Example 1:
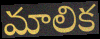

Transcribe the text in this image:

మాలిక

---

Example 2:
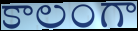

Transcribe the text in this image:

కాలంగా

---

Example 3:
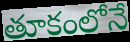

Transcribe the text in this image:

తూకంలోనే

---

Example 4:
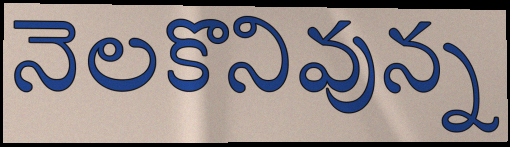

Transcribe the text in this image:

నెలకొనివున్న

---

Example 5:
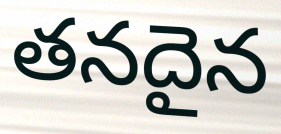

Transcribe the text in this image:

తనదైన